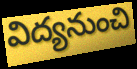
విద్యనుంచి